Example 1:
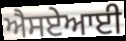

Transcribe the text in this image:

ਐਸਏਆਈ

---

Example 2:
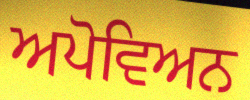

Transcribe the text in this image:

ਅਪੋਵਿਅਨ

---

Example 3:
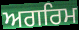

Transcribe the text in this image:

ਅਗਰਿਮ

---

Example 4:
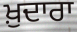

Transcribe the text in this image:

ਖ਼ੁਦਾਰਾ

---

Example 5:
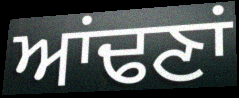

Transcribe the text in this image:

ਆਂਢਣਾਂ